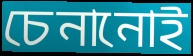
চেনানোই